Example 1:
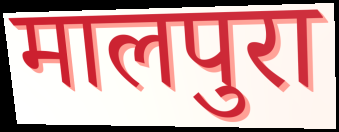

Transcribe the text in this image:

मालपुरा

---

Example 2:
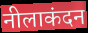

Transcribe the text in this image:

नीलाकंदन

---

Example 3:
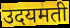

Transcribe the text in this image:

उदयमती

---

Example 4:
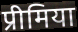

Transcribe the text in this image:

प्रीमिया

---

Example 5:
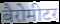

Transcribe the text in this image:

बैरोमीटर